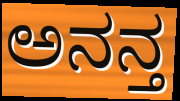
ಅನನ್ತ